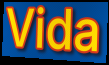
Vida